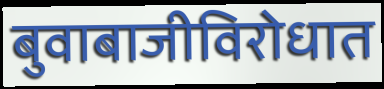
बुवाबाजीविरोधात